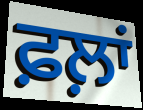
ਫ਼ਲ਼ਾਂ